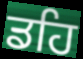
ਡਹਿ